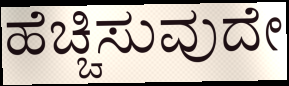
ಹೆಚ್ಚಿಸುವುದೇ